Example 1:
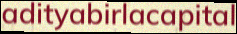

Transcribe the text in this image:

adityabirlacapital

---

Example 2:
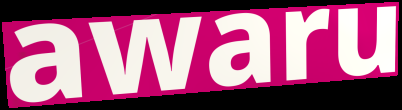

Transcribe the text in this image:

awaru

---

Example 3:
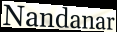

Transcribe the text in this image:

Nandanar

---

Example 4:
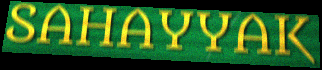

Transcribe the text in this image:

SAHAYYAK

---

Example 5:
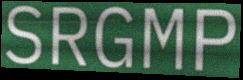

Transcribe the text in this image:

SRGMP